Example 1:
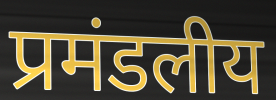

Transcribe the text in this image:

प्रमंडलीय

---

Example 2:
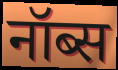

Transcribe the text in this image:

नॉब्स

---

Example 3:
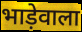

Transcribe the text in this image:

भाड़ेवाला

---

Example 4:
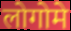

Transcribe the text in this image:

लोगोमे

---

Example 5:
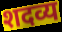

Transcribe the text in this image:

शदव्य